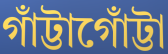
গাঁট্টাগোঁট্টা